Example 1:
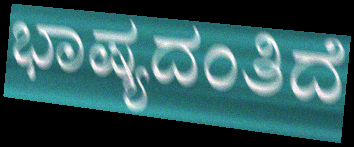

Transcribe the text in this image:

ಭಾಷ್ಯದಂತಿದೆ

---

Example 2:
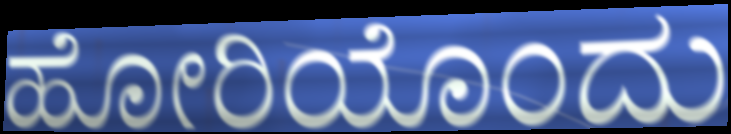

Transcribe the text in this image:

ಹೋರಿಯೊಂದು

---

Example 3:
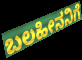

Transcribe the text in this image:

ಬಲಹೀನನಿಗೆ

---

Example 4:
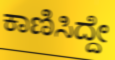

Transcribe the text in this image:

ಕಾಣಿಸಿದ್ದೇ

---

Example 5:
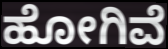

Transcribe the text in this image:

ಹೋಗಿವೆ